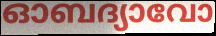
ഓബദ്യാവോ